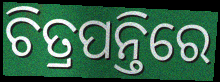
ଚିତ୍ରପନ୍ତିରେ